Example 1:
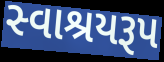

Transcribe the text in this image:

સ્વાશ્રયરૂપ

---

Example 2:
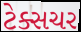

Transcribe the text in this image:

ટેક્સચર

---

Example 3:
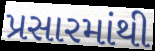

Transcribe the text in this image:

પ્રસારમાંથી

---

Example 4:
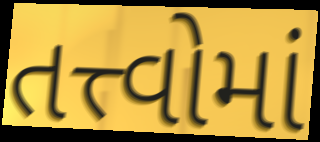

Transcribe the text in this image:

તત્ત્વોમાં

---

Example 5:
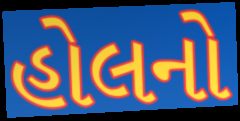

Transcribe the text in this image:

હોલનો